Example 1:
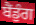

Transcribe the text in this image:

ਬੈਂਡੁੰਗ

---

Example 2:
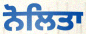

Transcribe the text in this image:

ਨੋਲਿਤਾ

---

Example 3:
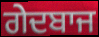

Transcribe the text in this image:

ਗੇਦਬਾਜ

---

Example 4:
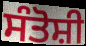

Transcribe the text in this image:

ਸੰਤੋਸ਼ੀ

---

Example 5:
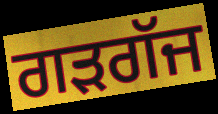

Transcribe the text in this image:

ਗਡ਼ਗੱਜ